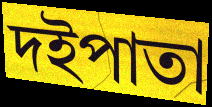
দইপাতা